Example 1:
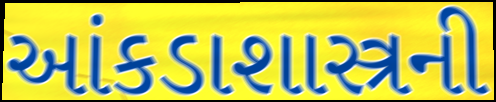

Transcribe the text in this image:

આંકડાશાસ્ત્રની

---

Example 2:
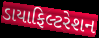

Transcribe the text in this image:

ડાયાફિલ્ટરેશન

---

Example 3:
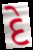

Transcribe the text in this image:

દે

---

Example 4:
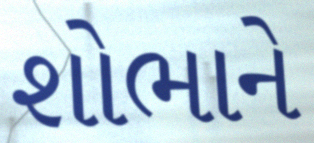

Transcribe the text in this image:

શોભાને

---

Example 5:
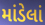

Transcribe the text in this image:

માંડેલાં